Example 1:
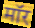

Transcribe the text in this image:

मॉर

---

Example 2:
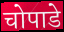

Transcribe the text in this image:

चोपाडे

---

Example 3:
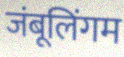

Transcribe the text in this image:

जंबूलिंगम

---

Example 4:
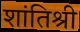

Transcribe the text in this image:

शांतिश्री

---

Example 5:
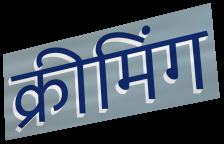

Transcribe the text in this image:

क्रीमिंग